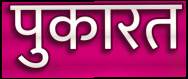
पुकारत